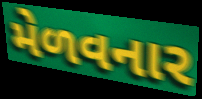
મેળવનાર